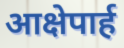
आक्षेपार्ह